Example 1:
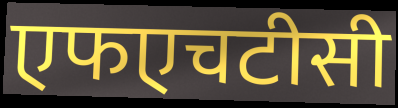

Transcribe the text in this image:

एफएचटीसी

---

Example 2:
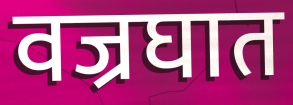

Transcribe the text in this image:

वज्रघात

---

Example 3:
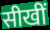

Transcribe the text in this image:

सीखीं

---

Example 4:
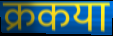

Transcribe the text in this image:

क्रकया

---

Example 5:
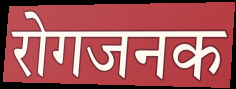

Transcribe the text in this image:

रोगजनक